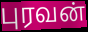
புரவன்